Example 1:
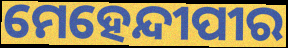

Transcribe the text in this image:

ମେହେନ୍ଦୀପୀର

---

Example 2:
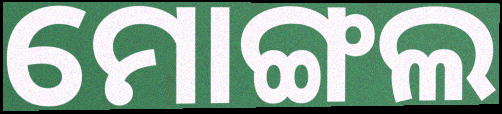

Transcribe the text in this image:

ମୋଙ୍ଗଲ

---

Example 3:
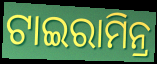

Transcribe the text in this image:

ଟାଇରାମିନ୍ର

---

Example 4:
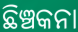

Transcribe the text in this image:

ଛିଞ୍ଚକନା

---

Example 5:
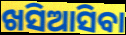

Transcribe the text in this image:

ଖସିଆସିବା